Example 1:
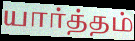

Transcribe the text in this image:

யார்த்தம்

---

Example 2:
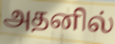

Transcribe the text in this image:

அதனில்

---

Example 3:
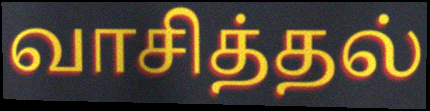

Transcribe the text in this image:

வாசித்தல்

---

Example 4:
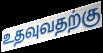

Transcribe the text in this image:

உதவுவதற்கு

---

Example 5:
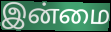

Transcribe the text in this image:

இன்மை